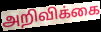
அறிவிக்கை